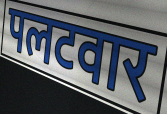
पलटवार